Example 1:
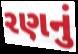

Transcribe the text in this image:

રણનું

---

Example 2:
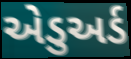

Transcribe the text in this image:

એડુઅર્ડ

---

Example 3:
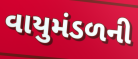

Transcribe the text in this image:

વાયુમંડળની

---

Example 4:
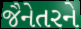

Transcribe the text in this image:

જૈનેતરને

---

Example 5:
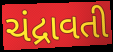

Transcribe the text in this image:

ચંદ્રાવતી